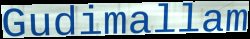
Gudimallam